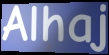
Alhaj